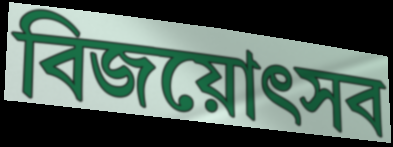
বিজয়োৎসব